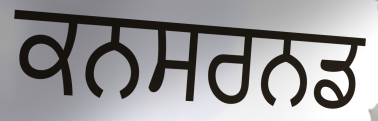
ਕਨਸਰਨਡ